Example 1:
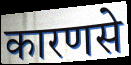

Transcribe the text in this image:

कारणसे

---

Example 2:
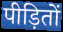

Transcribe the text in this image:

पीड़ितों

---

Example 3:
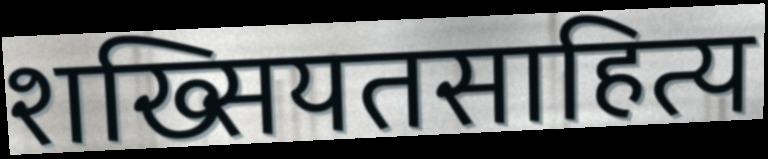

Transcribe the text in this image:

शख्सियतसाहित्य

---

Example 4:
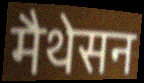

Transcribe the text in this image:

मैथेसन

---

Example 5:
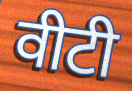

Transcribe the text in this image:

वीटी